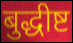
बुद्धीष्ट